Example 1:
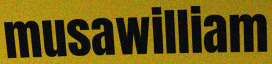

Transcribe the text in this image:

musawilliam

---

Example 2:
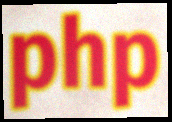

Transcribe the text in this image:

php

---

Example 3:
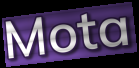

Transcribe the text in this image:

Mota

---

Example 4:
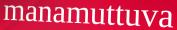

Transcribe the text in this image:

manamuttuva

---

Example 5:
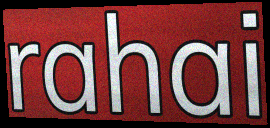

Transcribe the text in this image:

rahai